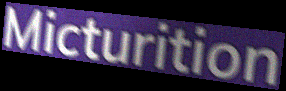
Micturition